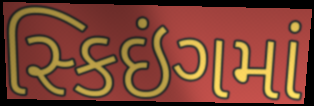
સ્કિઇંગમાં